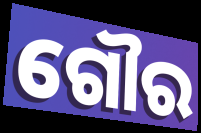
ଗୌର